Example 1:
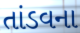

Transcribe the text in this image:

તાંડવના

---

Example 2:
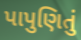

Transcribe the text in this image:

પાપુણિતું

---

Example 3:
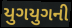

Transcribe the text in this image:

યુગયુગની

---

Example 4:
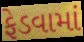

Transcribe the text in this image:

ફેડવામાં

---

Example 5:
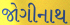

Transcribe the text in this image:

જોગીનાથ